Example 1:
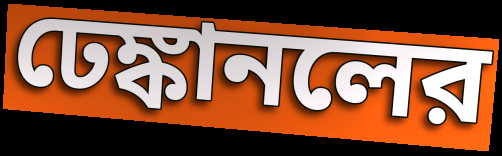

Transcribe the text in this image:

ঢেঙ্কানলের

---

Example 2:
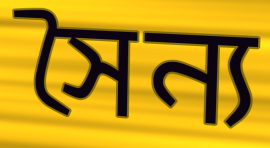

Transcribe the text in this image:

সৈন্য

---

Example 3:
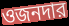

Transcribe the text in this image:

ওজনদার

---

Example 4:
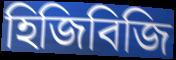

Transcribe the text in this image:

হিজিবিজি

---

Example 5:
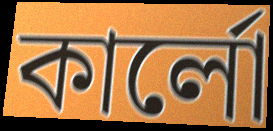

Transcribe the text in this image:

কার্লো